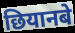
छियानबे